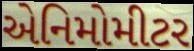
એનિમોમીટર